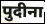
पुदीना